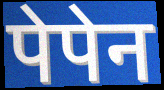
पेपेन